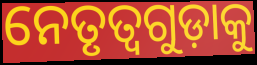
ନେତୃତ୍ୱଗୁଡ଼ାକୁ